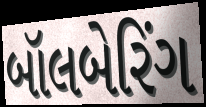
બૉલબેરિંગ